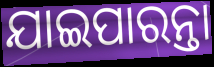
ଯାଇପାରନ୍ତା